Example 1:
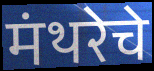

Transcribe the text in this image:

मंथरेचे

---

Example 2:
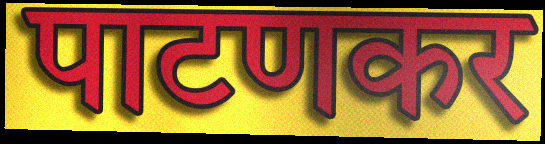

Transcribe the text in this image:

पाटणकर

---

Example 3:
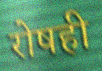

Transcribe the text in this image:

रोषही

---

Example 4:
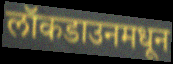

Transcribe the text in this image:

लॉकडाउनमधून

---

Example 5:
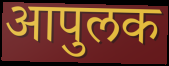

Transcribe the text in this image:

आपुलक